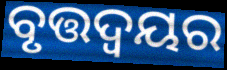
ବୃତ୍ତଦ୍ଵୟର